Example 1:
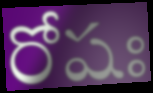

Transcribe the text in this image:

రోషః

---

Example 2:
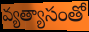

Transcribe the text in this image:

వ్యత్యాసంతో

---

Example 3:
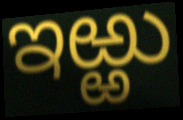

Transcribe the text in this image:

ఇఱ్ఱు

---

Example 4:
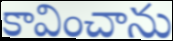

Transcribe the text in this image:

కావించాను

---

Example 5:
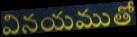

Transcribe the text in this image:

వినయముతో